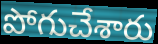
పోగుచేశారు